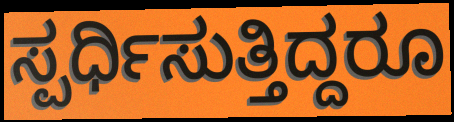
ಸ್ಪರ್ಧಿಸುತ್ತಿದ್ದರೂ